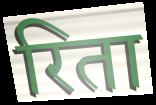
रिता